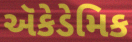
ઍકેડેમિક